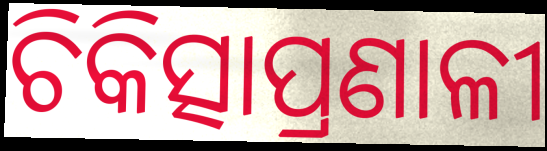
ଚିକିତ୍ସାପ୍ରଣାଳୀ